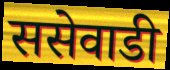
ससेवाडी